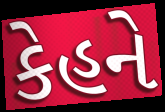
કેહને